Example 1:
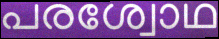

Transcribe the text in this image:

പരശ്വോഥ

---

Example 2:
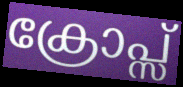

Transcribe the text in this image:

ക്രോപ്സ്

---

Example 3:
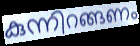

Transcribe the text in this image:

കുന്നിറങ്ങണം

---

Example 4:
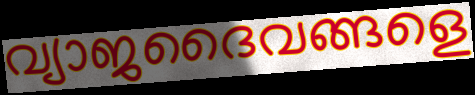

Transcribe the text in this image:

വ്യാജദൈവങ്ങളെ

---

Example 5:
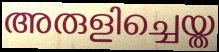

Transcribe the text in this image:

അരുളിച്ചെയ്ത